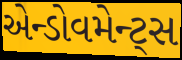
એન્ડોવમેન્ટ્સ